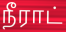
நீராட்